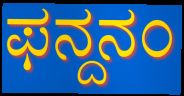
ಫನ್ದನಂ